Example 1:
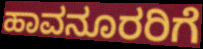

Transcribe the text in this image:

ಹಾವನೂರರಿಗೆ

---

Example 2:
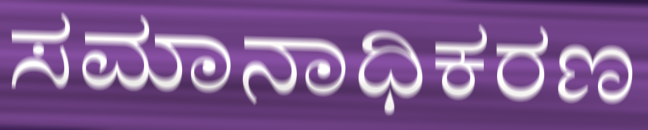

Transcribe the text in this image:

ಸಮಾನಾಧಿಕರಣ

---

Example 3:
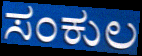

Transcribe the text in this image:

ಸಂಕುಲ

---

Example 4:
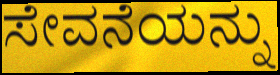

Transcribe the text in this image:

ಸೇವನೆಯನ್ನು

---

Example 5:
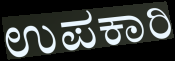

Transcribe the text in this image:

ಉಪಕಾರಿ